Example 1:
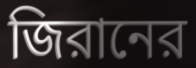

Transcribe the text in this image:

জিরানের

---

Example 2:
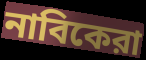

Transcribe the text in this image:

নাবিকেরা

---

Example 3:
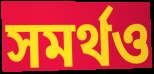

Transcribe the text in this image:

সমর্থও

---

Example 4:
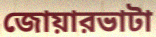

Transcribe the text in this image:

জোয়ারভাটা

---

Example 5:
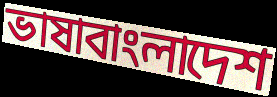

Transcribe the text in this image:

ভাষাবাংলাদেশ